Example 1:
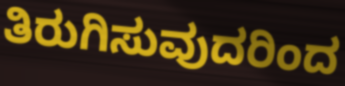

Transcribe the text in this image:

ತಿರುಗಿಸುವುದರಿಂದ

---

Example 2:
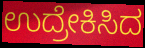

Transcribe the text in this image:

ಉದ್ರೇಕಿಸಿದ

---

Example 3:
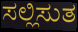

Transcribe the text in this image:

ಸಲ್ಲಿಸುತ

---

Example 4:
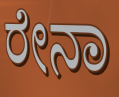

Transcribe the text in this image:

ರೇನಾ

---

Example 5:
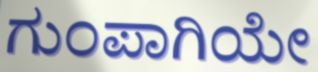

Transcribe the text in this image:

ಗುಂಪಾಗಿಯೇ